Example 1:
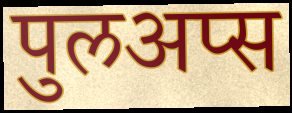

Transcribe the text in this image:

पुलअप्स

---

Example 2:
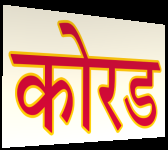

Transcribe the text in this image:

कोरड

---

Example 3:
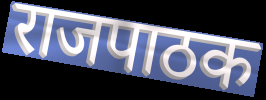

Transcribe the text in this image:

राजपाठक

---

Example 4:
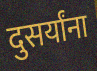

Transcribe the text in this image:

दुसर्यांना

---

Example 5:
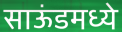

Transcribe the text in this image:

साऊंडमध्ये